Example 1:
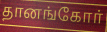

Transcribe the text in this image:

தானங்கோர்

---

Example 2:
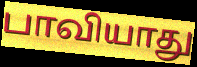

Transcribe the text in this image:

பாவியாது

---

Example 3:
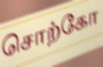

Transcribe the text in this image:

சொற்கோ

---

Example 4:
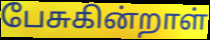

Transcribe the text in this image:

பேசுகின்றாள்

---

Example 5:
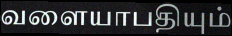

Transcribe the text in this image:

வளையாபதியும்